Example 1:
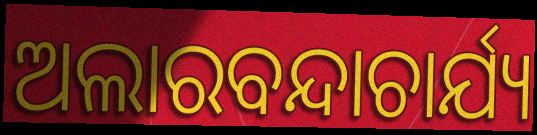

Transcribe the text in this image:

ଅଲାରବନ୍ଦାଚାର୍ଯ୍ୟ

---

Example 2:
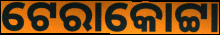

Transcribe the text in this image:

ଟେରାକୋଟ୍ଟା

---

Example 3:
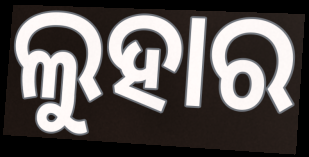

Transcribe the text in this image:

ଲୁହାର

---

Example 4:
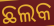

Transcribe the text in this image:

ଛଲକ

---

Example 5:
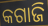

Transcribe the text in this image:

କଗାଜି